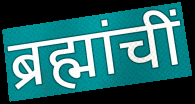
ब्रह्मांचीं